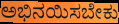
ಅಭಿನಯಿಸಬೇಕು